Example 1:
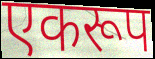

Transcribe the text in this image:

एकरूप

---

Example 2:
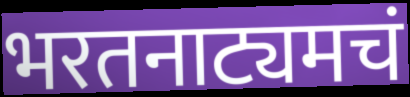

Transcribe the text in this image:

भरतनाट्यमचं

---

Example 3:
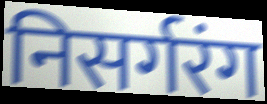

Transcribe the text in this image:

निसर्गरंग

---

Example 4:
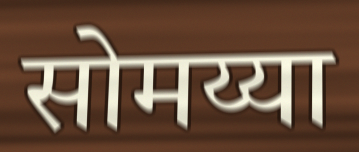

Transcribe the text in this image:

सोमय्या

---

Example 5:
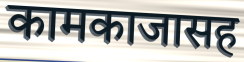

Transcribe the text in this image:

कामकाजासह